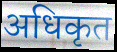
अधिकृत